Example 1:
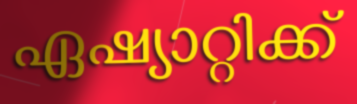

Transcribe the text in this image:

ഏഷ്യാറ്റിക്ക്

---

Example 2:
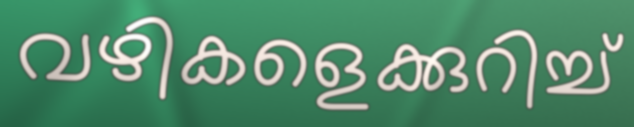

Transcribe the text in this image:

വഴികളെക്കുറിച്ച്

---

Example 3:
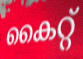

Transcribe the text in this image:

കൈറ്റ്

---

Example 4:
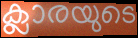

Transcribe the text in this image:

ക്ലാരയുടെ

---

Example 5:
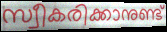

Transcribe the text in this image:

സ്വീകരിക്കാനുണ്ട്